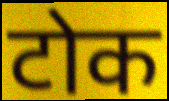
टोक